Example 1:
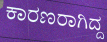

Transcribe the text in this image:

ಕಾರಣರಾಗಿದ್ದ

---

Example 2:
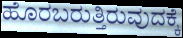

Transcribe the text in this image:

ಹೊರಬರುತ್ತಿರುವುದಕ್ಕೆ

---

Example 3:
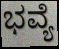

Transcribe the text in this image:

ಭವ್ಯೆ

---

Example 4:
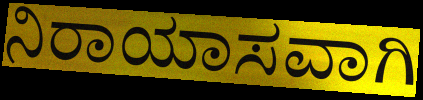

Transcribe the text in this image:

ನಿರಾಯಾಸವಾಗಿ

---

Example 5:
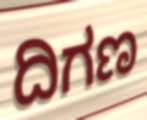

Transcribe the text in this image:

ದಿಗಣ